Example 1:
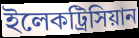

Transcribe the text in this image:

ইলেকট্রিসিয়ান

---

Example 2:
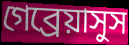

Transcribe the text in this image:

গেব্রেয়াসুস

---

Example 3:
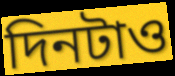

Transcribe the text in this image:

দিনটাও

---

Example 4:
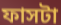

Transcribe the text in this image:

ফাসটা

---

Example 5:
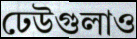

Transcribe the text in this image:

ঢেউগুলাও